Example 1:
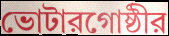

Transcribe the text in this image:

ভোটারগোষ্ঠীর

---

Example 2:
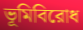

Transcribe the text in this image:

ভূমিবিরোধ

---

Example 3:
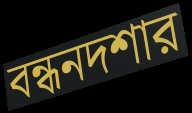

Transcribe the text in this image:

বন্ধনদশার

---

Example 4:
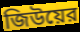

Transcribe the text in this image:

জিউয়ের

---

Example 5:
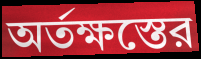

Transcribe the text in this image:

অর্তক্ষস্তের